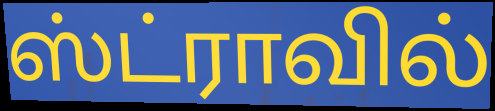
ஸ்ட்ராவில்